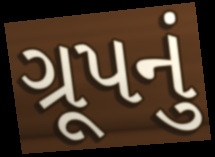
ગ્રૂપનું